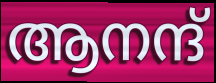
ആനന്ദ്